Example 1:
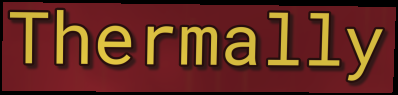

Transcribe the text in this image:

Thermally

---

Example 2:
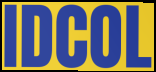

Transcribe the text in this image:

IDCOL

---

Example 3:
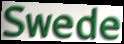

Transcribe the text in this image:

Swede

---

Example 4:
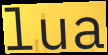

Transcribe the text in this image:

lua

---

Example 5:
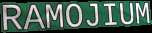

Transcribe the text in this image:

RAMOJIUM